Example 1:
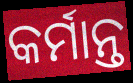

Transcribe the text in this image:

କର୍ମାନ୍ତ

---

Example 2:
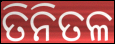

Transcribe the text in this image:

ତିନିତଳ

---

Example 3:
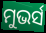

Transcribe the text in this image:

ମୁଭର୍ସ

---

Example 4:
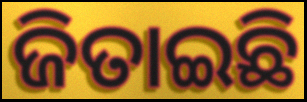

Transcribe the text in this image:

ଜିତାଇଛି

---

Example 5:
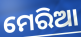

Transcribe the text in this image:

ମେରିଆ